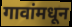
गावांमधून